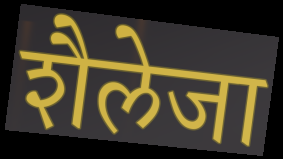
शैलेजा